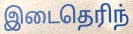
இடைதெரிந்